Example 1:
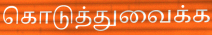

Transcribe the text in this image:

கொடுத்துவைக்க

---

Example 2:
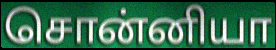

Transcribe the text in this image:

சொன்னியா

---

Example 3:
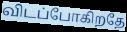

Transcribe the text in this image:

விடப்போகிறதே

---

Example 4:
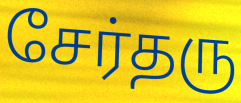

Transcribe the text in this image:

சேர்தரு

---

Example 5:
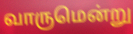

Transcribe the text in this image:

வாருமென்று